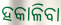
ହକାଳିବା